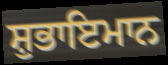
ਸ਼ੁਭਾਇਮਾਨ